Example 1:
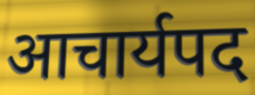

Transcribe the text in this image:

आचार्यपद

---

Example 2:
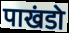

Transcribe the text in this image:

पाखंडो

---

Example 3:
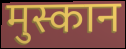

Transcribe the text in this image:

मुस्‍कान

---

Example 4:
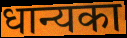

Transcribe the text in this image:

धान्यका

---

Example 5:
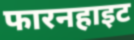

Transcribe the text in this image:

फारनहाइट